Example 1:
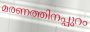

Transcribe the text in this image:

മരണത്തിനപ്പുറം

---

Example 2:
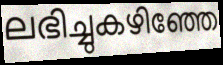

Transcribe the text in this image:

ലഭിച്ചുകഴിഞ്ഞേ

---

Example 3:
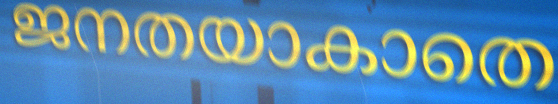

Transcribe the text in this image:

ജനതയാകാതെ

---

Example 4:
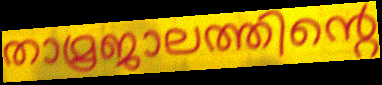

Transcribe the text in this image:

താമ്രജാലത്തിന്റെ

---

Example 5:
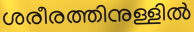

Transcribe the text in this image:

ശരീരത്തിനുള്ളിൽ